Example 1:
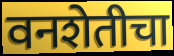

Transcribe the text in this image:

वनशेतीचा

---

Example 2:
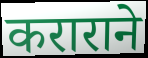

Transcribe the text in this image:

कराराने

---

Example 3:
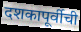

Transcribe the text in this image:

दशकापूर्वीची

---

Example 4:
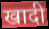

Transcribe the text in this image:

खादी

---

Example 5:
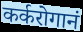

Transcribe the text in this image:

कर्करोगानं